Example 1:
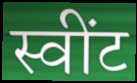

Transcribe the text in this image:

स्वींट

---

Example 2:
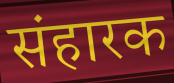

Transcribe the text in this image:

संहारक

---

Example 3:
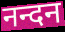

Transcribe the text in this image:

नन्दन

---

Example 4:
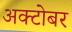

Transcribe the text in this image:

अक्टोबर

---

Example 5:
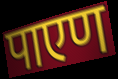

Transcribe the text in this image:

पाएण